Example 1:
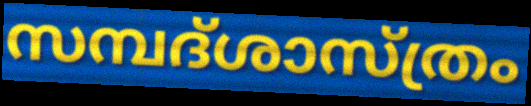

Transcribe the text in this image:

സമ്പദ്ശാസ്ത്രം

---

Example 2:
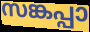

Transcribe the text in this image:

സങ്കപ്പാ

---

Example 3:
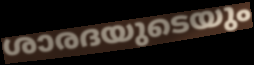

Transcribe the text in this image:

ശാരദയുടെയും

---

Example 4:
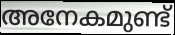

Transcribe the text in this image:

അനേകമുണ്ട്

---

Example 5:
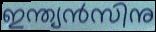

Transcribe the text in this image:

ഇന്ത്യൻസിനു